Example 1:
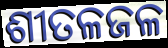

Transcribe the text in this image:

ଶୀତଳଜଳ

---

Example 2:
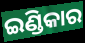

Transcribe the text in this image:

ଇଣ୍ଡିକାର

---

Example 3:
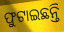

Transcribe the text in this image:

ଫୁଟାଇଛନ୍ତି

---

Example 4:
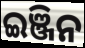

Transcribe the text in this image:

ଇଞ୍ଜିନ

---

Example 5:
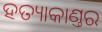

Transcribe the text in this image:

ହତ୍ୟାକାଣ୍ତର